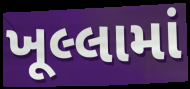
ખૂલ્લામાં